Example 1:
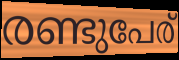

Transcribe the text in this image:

രണ്ടുപേര്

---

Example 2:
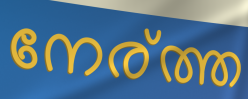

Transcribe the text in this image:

നേര്ത്ത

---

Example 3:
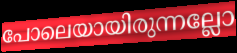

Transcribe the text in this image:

പോലെയായിരുന്നല്ലോ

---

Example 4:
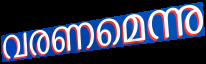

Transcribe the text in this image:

വരണമെന്നു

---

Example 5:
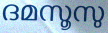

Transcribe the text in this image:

ദമസൂസു